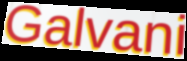
Galvani